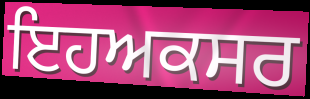
ਇਹਅਕਸਰ